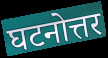
घटनोत्तर